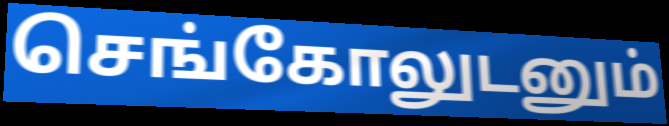
செங்கோலுடனும்